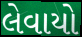
લેવાયો